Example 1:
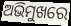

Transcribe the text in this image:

ଅଭିମୁଖରେ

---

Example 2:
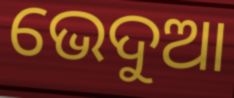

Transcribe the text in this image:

ଭେଦୁଆ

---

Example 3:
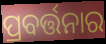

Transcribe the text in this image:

ପ୍ରବର୍ତ୍ତନାର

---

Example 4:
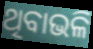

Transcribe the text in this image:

ଥିବାଭଳି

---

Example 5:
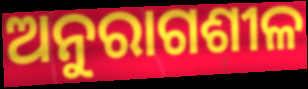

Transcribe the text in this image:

ଅନୁରାଗଶୀଳ